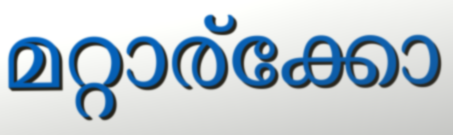
മറ്റാര്ക്കോ